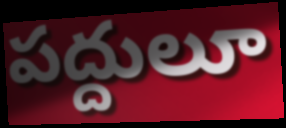
పద్దులూ